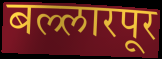
बल्लारपूर